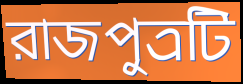
রাজপুত্রটি